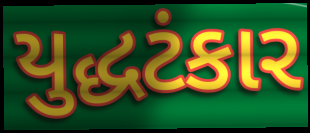
યુદ્ધટંકાર